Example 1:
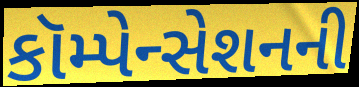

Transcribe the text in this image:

કૉમ્પેન્સેશનની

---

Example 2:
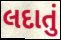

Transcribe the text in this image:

લદાતું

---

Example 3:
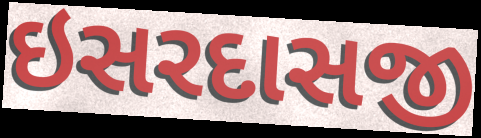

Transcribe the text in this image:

ઇસરદાસજી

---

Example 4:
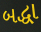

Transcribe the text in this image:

બદ્ધા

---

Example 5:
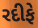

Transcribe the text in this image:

રદીફે